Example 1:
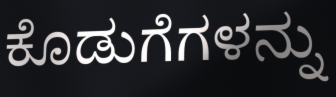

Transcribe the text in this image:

ಕೊಡುಗೆಗಳನ್ನು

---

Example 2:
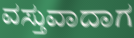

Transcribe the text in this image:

ವಸ್ತುವಾದಾಗ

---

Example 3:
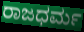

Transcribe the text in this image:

ರಾಜಧರ್ಮ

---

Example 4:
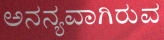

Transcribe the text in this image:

ಅನನ್ಯವಾಗಿರುವ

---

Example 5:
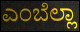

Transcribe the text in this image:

ಎಂಬೆಲ್ಲಾ